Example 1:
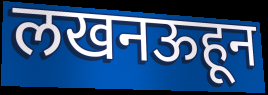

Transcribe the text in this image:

लखनऊहून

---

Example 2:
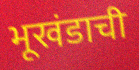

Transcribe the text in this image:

भूखंडाची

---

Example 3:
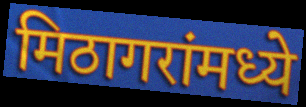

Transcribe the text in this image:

मिठागरांमध्ये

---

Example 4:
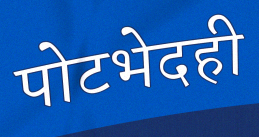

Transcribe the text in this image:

पोटभेदही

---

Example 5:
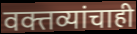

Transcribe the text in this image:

वक्तव्यांचाही